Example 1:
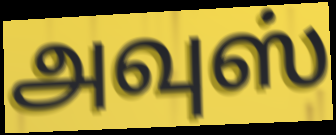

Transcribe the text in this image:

அவுஸ்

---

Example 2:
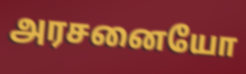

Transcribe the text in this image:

அரசனையோ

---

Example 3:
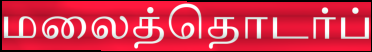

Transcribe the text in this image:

மலைத்தொடர்ப்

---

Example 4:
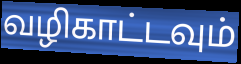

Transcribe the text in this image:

வழிகாட்டவும்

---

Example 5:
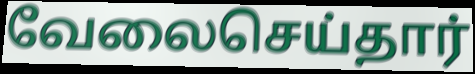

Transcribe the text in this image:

வேலைசெய்தார்